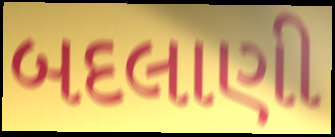
બદલાણી